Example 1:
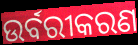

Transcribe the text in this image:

ଉର୍ବରୀକରଣ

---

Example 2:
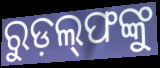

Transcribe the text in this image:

ରୁଡ଼ଲ୍‍ଫଙ୍କୁ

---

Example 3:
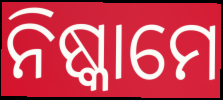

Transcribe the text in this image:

ନିଷ୍କାମେ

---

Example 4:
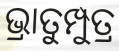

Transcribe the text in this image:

ଭ୍ରାତୁମ୍ପୁତ୍ର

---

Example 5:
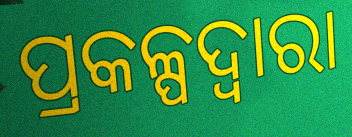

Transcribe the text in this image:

ପ୍ରକଳ୍ପଦ୍ୱାରା